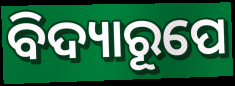
ବିଦ୍ୟାରୂପେ